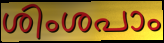
ശിംശപാം